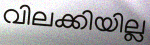
വിലക്കിയില്ല